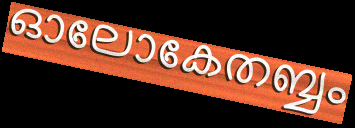
ഓലോകേതബ്ബം